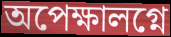
অপেক্ষালগ্নে